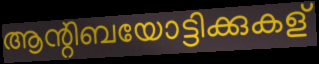
ആന്റിബയോട്ടിക്കുകള്